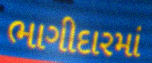
ભાગીદારમાં